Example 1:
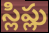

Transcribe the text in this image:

స్లిప్లు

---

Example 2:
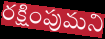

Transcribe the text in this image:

రక్షింపుమని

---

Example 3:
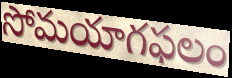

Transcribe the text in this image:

సోమయాగఫలం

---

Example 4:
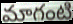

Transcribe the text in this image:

మాగంటి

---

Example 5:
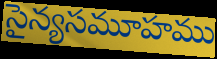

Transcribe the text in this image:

సైన్యసమూహము